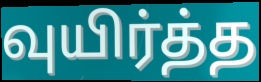
வுயிர்த்த